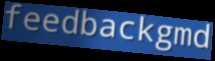
feedbackgmd